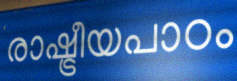
രാഷ്ട്രീയപാഠം